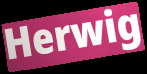
Herwig